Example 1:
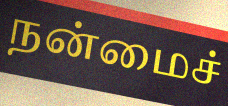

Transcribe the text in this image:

நன்மைச்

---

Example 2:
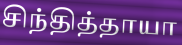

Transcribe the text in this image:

சிந்தித்தாயா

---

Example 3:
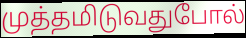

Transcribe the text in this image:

முத்தமிடுவதுபோல்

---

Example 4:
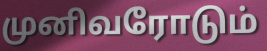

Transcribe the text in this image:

முனிவரோடும்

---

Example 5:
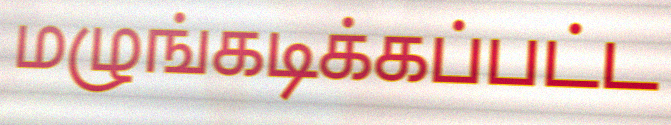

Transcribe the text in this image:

மழுங்கடிக்கப்பட்ட